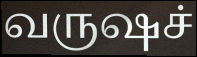
வருஷச்